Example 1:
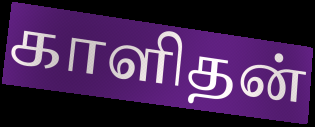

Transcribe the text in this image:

காளிதன்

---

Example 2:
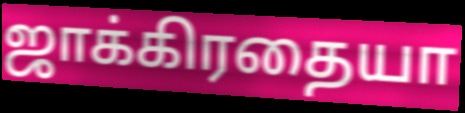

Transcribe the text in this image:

ஜாக்கிரதையா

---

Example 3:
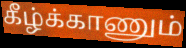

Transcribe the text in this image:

கீழ்க்காணும்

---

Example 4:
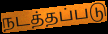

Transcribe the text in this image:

நடத்தப்படு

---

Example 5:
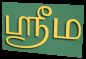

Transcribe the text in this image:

ஶ்ரீம